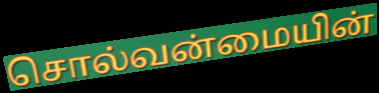
சொல்வன்மையின்